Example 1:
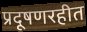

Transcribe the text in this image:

प्रदूषणरहीत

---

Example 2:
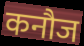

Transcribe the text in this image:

कनौज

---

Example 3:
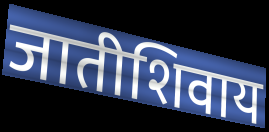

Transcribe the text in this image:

जातीशिवाय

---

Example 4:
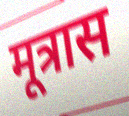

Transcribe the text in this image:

मूत्रास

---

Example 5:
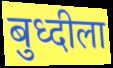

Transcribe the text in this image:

बुध्दीला